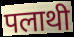
पलाथी